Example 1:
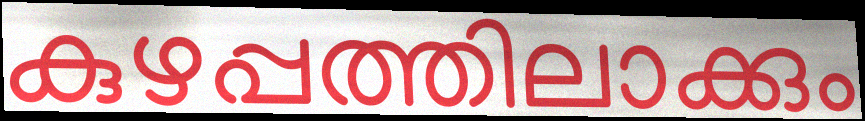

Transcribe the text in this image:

കുഴപ്പത്തിലാക്കും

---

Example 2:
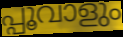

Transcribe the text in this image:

പ്പൂവാളും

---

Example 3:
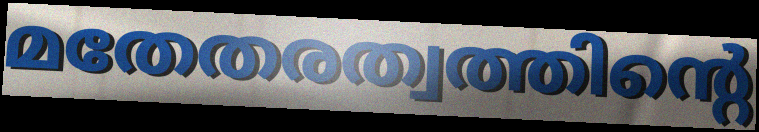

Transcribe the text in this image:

മതേതരത്വത്തിന്റെ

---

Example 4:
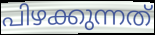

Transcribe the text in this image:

പിഴക്കുന്നത്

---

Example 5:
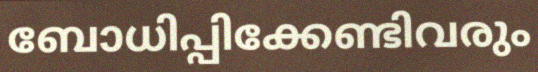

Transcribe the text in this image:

ബോധിപ്പിക്കേണ്ടിവരും